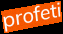
profeti